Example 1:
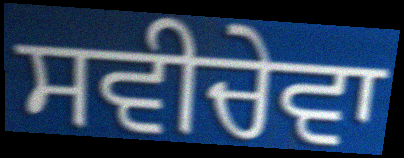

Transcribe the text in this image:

ਸਵੀਚੇਵਾ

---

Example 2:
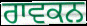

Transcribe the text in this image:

ਰਾਵਕਨ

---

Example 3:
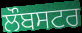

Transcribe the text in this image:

ਲੌਬਸਟਰ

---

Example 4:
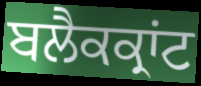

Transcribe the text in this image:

ਬਲੈਕਕ੍ਰਾਂਟ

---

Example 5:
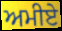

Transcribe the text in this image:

ਅਮੀਏ